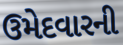
ઉમેદવારની